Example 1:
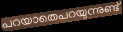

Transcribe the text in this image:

പറയാതെപറയുന്നുണ്ട്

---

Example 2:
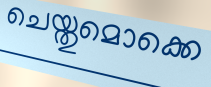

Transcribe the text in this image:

ചെയ്തുമൊക്കെ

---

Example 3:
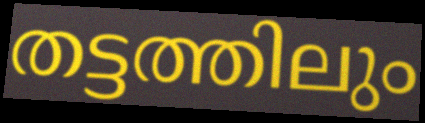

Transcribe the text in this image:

തട്ടത്തിലും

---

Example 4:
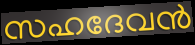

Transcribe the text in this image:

സഹദേവൻ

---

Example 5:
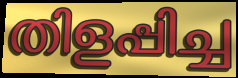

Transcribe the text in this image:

തിളപ്പിച്ച